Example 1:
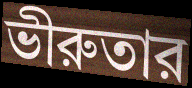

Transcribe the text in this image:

ভীরুতার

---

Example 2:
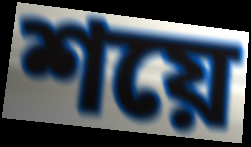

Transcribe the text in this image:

শয়ে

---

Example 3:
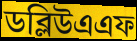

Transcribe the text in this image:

ডব্লিউএএফ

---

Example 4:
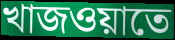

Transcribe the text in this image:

খাজওয়াতে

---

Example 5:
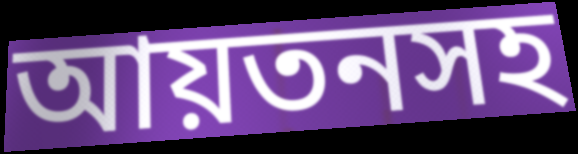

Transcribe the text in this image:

আয়তনসহ